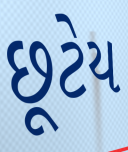
છૂટેય